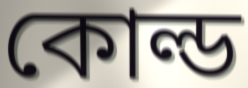
কোল্ড